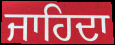
ਜਾਹਿਦਾ